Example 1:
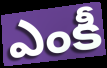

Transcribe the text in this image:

ఎంకీ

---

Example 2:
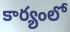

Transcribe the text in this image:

కార్యంలో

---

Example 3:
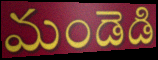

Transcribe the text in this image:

మండెడి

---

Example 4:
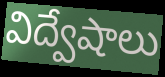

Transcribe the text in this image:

విద్వేషాలు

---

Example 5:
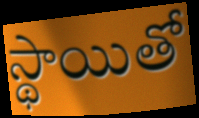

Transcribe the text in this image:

స్థాయితో